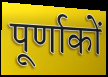
पूर्णाकों